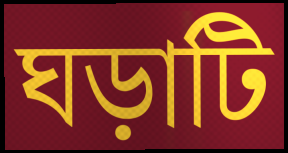
ঘড়াটি